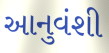
આનુવંશી